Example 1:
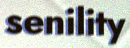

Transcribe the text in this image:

senility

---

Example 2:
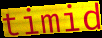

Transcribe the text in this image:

timid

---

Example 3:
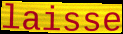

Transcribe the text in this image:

laisse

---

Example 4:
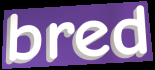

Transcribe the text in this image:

bred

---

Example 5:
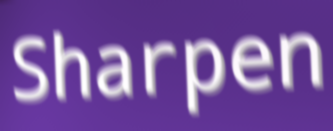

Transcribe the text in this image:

Sharpen